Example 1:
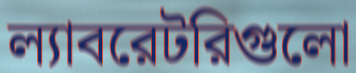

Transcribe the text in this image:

ল্যাবরেটরিগুলো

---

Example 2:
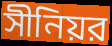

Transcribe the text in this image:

সীনিয়র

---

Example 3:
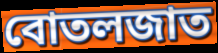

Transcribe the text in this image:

বোতলজাত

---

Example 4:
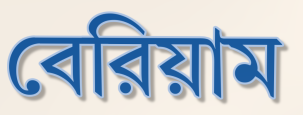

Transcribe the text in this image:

বেরিয়াম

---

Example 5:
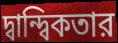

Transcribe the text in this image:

দ্বান্দ্বিকতার